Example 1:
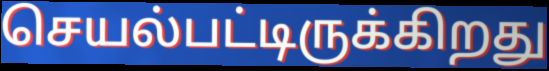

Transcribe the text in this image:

செயல்பட்டிருக்கிறது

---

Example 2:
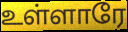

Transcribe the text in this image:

உள்ளாரே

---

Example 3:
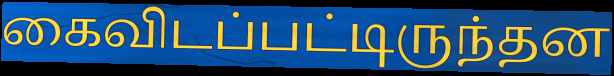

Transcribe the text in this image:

கைவிடப்பட்டிருந்தன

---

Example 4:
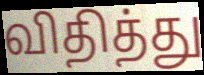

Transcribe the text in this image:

விதித்து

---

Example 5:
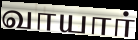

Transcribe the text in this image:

வாயார்